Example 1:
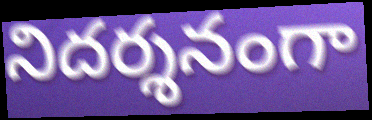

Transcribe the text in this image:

నిదర్శనంగా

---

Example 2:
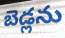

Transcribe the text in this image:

బెడ్లను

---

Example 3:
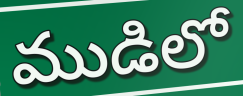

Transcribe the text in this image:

ముడిలో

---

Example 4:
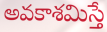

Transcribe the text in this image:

అవకాశమిస్తే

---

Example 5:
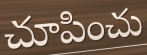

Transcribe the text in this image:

చూపించు